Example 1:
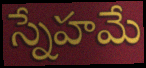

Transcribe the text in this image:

స్నేహమే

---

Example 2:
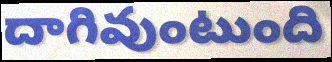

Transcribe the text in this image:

దాగివుంటుంది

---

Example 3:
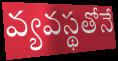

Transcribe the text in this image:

వ్యవస్థతోనే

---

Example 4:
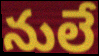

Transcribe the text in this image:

నులే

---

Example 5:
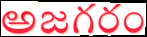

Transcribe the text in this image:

అజగరం